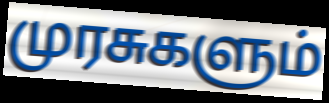
முரசுகளும்